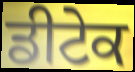
ਡੀਟੇਕ